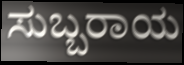
ಸುಬ್ಬರಾಯ